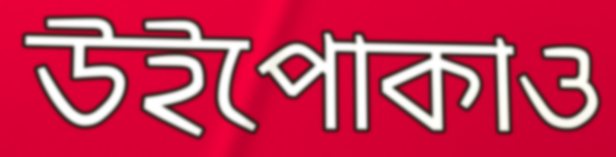
উইপোকাও